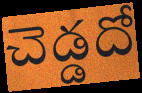
చెడ్డదో